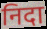
निदा